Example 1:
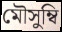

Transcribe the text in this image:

মৌসুম্বি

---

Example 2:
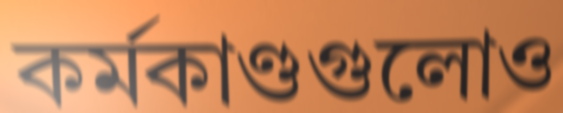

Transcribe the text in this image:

কর্মকাণ্ডগুলোও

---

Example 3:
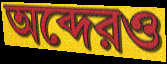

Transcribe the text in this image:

অব্দেরও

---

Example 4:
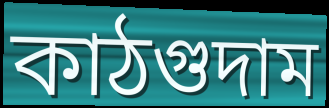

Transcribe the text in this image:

কাঠগুদাম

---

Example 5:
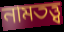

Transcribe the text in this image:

নামতত্ত্ব